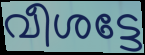
വീശട്ടേ